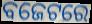
ବଜେଟରେ